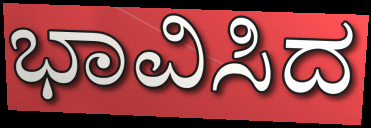
ಭಾವಿಸಿದ